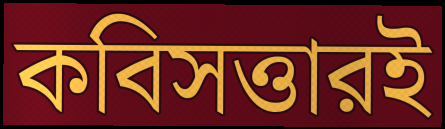
কবিসত্তারই